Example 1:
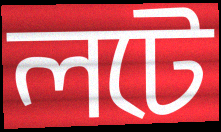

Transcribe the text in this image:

লটে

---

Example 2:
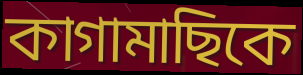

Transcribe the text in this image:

কাগামাছিকে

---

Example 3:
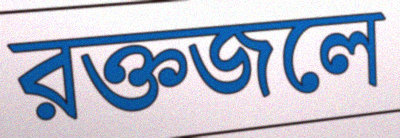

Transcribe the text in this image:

রক্তজলে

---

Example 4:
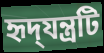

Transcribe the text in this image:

হৃদ্‌যন্ত্রটি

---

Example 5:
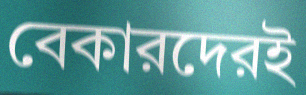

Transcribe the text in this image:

বেকারদেরই